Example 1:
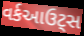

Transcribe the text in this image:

વર્કઆઉટ્સ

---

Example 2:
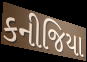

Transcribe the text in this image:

કનીજિયા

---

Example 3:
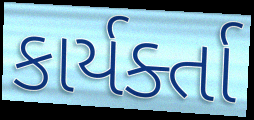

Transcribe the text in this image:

કાર્યર્ક્તા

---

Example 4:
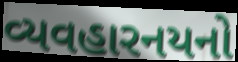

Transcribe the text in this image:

વ્યવહારનયનો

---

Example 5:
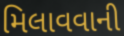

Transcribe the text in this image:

મિલાવવાની